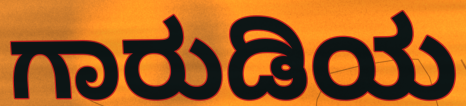
ಗಾರುಡಿಯ